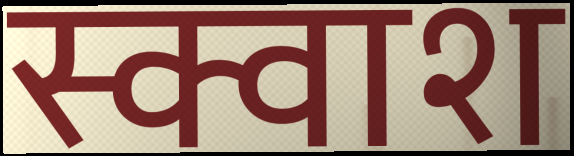
स्क्वाश